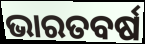
ଭାରତବର୍ଷ